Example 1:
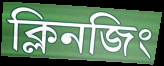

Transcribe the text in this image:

ক্লিনজিং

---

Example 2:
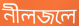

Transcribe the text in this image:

নীলজলে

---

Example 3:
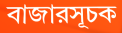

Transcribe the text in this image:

বাজারসূচক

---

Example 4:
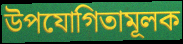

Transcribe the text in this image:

উপযোগিতামূলক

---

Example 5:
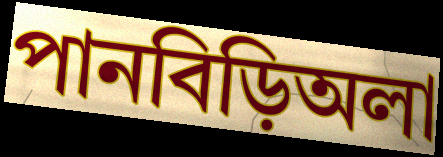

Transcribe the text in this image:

পানবিড়িঅলা